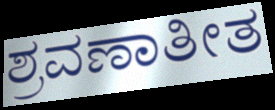
ಶ್ರವಣಾತೀತ